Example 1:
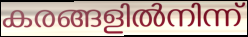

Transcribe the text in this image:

കരങ്ങളിൽനിന്ന്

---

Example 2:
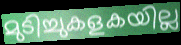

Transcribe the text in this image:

മുടിച്ചുകളകയില്ല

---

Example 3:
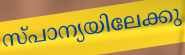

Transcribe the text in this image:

സ്പാന്യയിലേക്കു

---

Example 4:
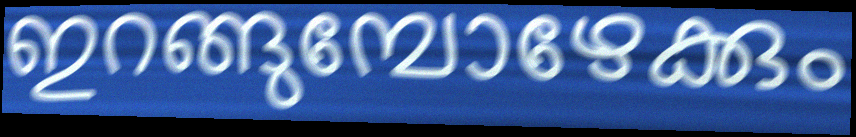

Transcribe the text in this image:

ഇറങ്ങുമ്പോഴേക്കും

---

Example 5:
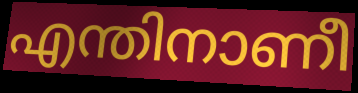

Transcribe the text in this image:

എന്തിനാണീ